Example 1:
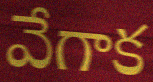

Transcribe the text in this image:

వేగాక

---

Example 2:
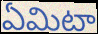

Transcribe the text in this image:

ఏమిటా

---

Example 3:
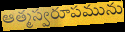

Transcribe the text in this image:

ఆత్మస్వరూపమును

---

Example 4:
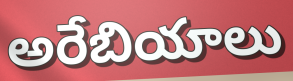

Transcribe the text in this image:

అరేబియాలు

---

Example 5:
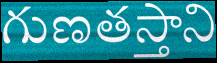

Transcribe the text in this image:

గుణతస్తాని